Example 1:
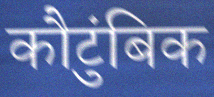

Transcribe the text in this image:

कौटुंबिक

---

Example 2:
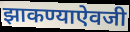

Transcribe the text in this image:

झाकण्याऐवजी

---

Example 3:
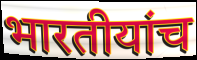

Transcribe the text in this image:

भारतीयांच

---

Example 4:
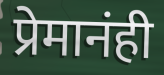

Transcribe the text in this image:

प्रेमानंही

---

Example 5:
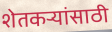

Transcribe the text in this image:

शेतकऱ्यांसाठी